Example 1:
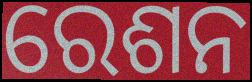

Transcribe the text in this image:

ରେଶନ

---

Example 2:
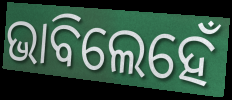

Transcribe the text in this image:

ଭାବିଲେହେଁ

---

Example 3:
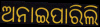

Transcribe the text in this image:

ଅନାଇପାରିଲି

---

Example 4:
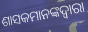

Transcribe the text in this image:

ଶାସକମାନଙ୍କଦ୍ୱାରା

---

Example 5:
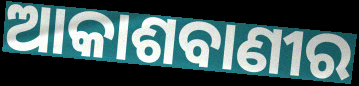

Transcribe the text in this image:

ଆକାଶବାଣୀର